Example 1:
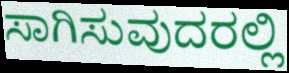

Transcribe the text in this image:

ಸಾಗಿಸುವುದರಲ್ಲಿ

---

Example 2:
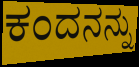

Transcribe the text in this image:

ಕಂದನನ್ನು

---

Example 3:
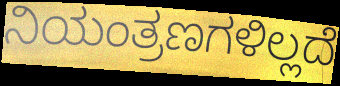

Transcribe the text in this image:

ನಿಯಂತ್ರಣಗಳಿಲ್ಲದೆ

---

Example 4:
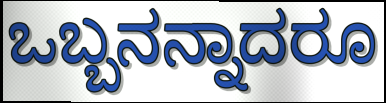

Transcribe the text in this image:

ಒಬ್ಬನನ್ನಾದರೂ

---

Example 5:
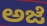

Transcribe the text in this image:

ಅಜೆ